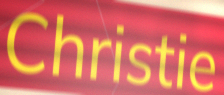
Christie